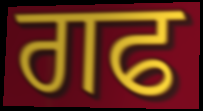
ਗਫ